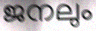
ജനലും